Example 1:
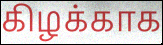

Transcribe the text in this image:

கிழக்காக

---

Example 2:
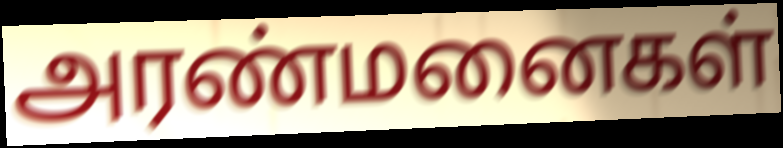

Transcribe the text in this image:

அரண்மனைகள்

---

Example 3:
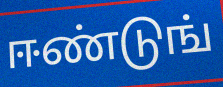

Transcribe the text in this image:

ஈண்டுங்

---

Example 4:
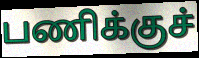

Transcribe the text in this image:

பணிக்குச்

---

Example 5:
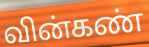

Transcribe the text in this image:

வின்கண்